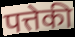
पत्तेकी